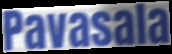
Pavasala